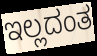
ಇಲ್ಲದಂತ